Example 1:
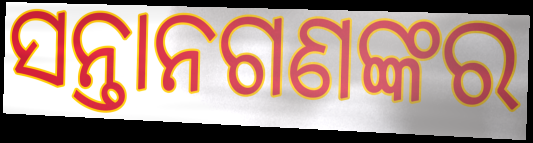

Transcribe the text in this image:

ସନ୍ତାନଗଣଙ୍କର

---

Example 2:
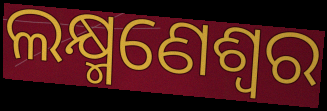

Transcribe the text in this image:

ଲକ୍ଷ୍ମଣେଶ୍ୱର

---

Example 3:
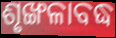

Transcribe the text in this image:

ଶୃଙ୍ଖଳାବଦ୍ଧ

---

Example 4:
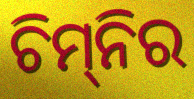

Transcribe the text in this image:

ଚିମ୍‌ନିର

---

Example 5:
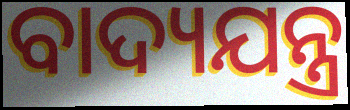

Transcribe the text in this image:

ବାଦ୍ୟଯନ୍ତ୍ର